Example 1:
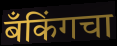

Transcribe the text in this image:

बँकिंगचा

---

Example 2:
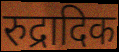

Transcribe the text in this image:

रुद्रादिक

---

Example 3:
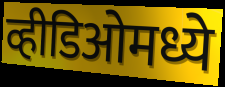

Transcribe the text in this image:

व्हीडिओमध्ये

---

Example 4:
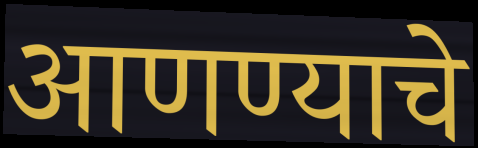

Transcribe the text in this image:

आणण्याचे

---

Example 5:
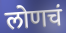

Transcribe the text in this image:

लोणचं